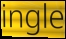
ingle